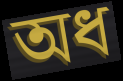
অধ